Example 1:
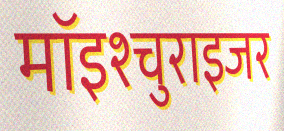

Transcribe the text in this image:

मॉइश्चुराइजर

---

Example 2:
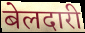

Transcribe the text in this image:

बेलदारी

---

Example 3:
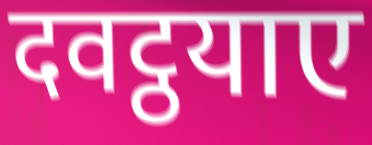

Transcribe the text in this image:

दवट्ठयाए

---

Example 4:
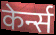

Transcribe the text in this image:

केर्न्स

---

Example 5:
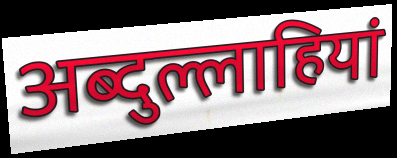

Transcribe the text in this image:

अब्दुल्लाहियां